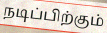
நடிப்பிற்கும்